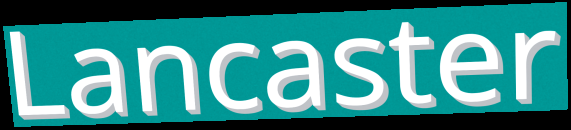
Lancaster